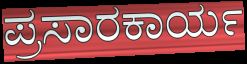
ಪ್ರಸಾರಕಾರ್ಯ